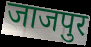
जाजपुर